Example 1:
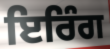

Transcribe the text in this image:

ਇਰਿੰਗ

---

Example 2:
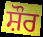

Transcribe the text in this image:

ਸ਼ੌਰ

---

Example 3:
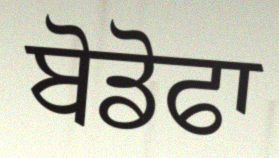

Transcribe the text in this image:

ਬੋਡੋਫਾ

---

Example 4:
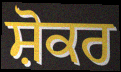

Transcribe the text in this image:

ਸ਼ੋਕਰ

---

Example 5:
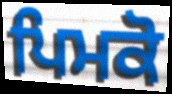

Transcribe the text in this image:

ਪਿਮਕੋ